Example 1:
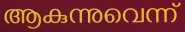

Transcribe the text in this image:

ആകുന്നുവെന്ന്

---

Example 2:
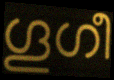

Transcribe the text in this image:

ഗൂഗീ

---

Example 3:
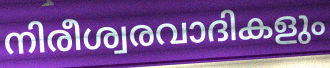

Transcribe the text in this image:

നിരീശ്വരവാദികളും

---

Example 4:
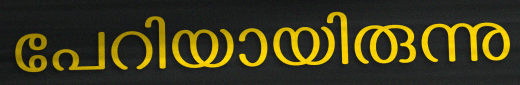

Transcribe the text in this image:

പേറിയായിരുന്നു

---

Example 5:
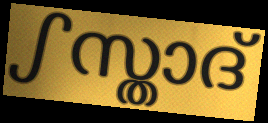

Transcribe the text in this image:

ഽസ്താദ്